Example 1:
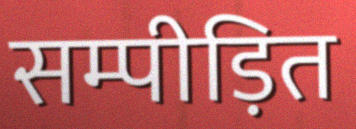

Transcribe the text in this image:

सम्पीड़ित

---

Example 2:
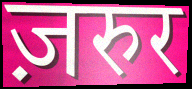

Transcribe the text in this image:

ज़रुर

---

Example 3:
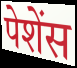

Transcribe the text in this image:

पेशेंस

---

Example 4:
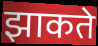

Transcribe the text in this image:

झाकते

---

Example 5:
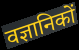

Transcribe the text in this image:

वज्ञानिकों